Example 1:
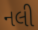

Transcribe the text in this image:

નલી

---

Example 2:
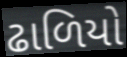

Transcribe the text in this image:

ઢાળિયો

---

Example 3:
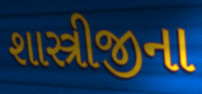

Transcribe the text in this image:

શાસ્ત્રીજીના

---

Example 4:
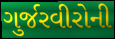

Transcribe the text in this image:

ગુર્જરવીરોની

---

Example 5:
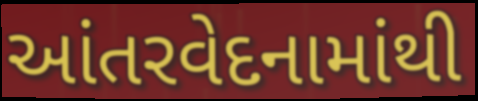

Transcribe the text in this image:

આંતરવેદનામાંથી